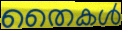
തൈകൾ